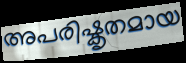
അപരിഷ്കൃതമായ